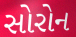
સોરોન